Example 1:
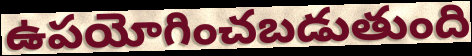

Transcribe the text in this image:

ఉపయోగించబడుతుంది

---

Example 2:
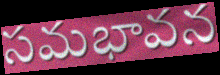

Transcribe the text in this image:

సమభావన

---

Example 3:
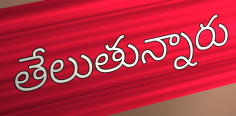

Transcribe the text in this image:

తేలుతున్నారు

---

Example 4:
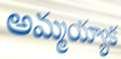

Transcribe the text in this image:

అమ్మయ్యాక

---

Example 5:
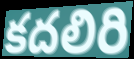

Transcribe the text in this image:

కదలిరి